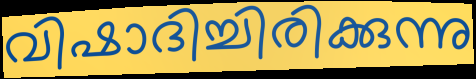
വിഷാദിച്ചിരിക്കുന്നു